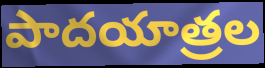
పాదయాత్రల